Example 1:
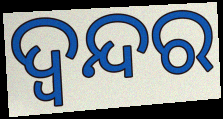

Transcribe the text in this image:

ଦ୍ବନ୍ଦର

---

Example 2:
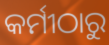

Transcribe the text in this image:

କର୍ମୀଠାରୁ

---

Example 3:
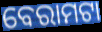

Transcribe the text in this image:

ବେରାମଟା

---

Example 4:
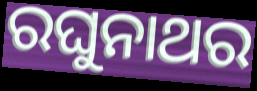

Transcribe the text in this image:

ରଘୁନାଥର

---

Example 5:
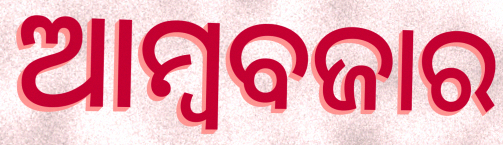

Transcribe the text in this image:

ଆମ୍ୱବଜାର